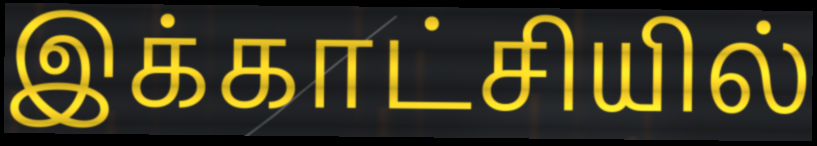
இக்காட்சியில்